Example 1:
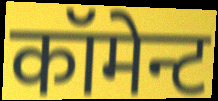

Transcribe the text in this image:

कॉमेन्ट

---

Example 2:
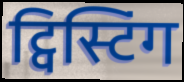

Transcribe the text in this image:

ट्विस्टिंग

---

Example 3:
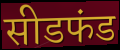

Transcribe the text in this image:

सीडफंड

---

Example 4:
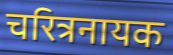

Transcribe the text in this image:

चरित्रनायक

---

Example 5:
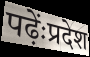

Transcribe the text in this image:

पढ़ेंःप्रदेश